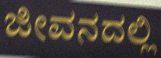
ಜೀವನದಲ್ಲಿ